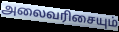
அலைவரிசையும்